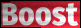
Boost